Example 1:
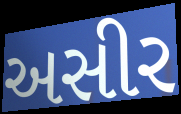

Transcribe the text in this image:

અસીર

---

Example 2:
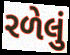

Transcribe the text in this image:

રળેલું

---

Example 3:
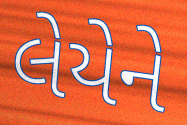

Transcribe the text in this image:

લેયેને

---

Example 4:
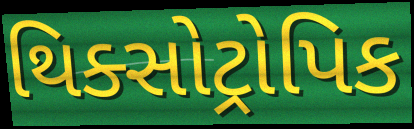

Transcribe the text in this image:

થિક્સોટ્રોપિક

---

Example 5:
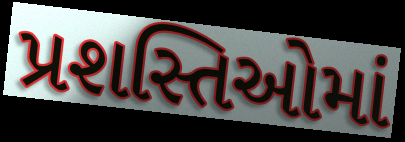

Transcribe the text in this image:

પ્રશસ્તિઓમાં